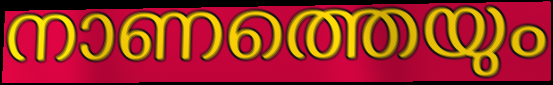
നാണത്തെയും